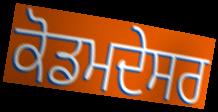
ਕੋਡਮਦੇਸਰ